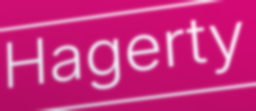
Hagerty